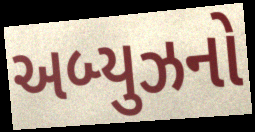
અબ્યુઝનો